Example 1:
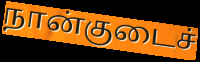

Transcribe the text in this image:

நான்குடைச்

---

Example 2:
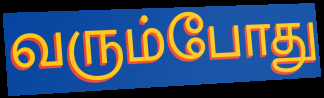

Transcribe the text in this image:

வரும்போது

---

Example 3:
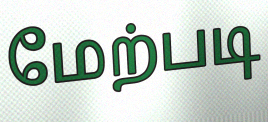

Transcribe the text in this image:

மேற்படி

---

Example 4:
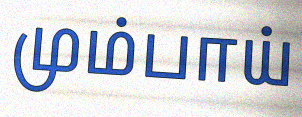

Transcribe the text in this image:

மும்பாய்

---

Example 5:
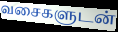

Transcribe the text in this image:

வசைகளுடன்